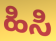
ಹಿಸಿ